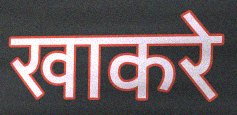
खाकरे